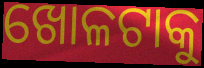
ଖୋଳଟାକୁ